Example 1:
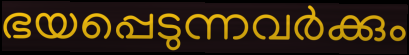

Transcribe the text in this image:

ഭയപ്പെടുന്നവർക്കും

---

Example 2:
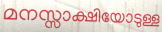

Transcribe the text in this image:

മനസ്സാക്ഷിയോടുള്ള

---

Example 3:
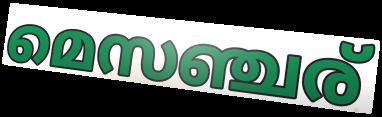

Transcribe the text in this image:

മെസഞ്ചര്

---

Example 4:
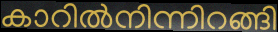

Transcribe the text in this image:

കാറിൽനിന്നിറങ്ങി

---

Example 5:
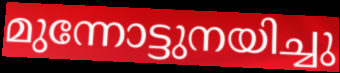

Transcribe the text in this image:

മുന്നോട്ടുനയിച്ചു